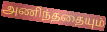
அணிந்ததையும்